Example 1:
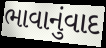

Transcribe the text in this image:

ભાવાનુંવાદ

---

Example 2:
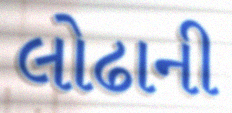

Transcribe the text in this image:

લોઢાની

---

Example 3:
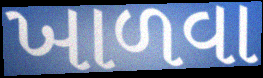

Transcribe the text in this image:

ખાળવા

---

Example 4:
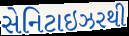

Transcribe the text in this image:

સેનિટાઇઝરથી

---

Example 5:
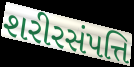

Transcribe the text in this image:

શરીરસંપત્તિ